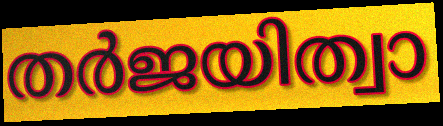
തർജയിത്വാ